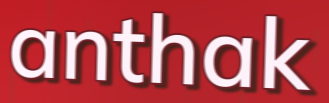
anthak